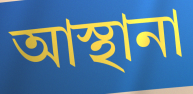
আস্থানা